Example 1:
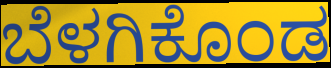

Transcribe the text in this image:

ಬೆಳಗಿಕೊಂಡ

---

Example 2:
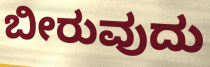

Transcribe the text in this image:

ಬೀರುವುದು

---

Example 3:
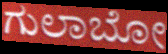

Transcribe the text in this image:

ಗುಲಾಬೋ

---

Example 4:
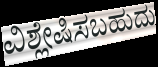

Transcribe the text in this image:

ವಿಶ್ಲೇಷಿಸಬಹುದು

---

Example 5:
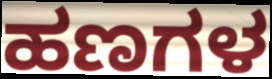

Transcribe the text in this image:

ಹಣಗಳ